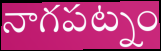
నాగపట్నం